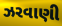
ઝરવાણી